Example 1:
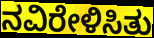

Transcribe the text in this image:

ನವಿರೇಳಿಸಿತು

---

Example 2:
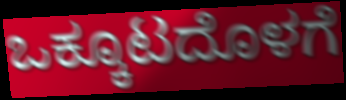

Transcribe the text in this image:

ಒಕ್ಕೂಟದೊಳಗೆ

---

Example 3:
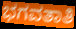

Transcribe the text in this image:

ಭಗವತಾತಿ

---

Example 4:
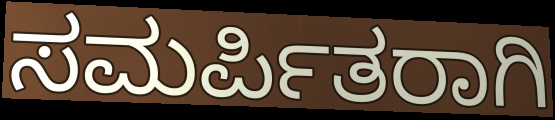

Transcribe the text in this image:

ಸಮರ್ಪಿತರಾಗಿ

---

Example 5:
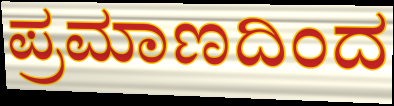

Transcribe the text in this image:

ಪ್ರಮಾಣದಿಂದ